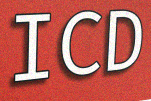
ICD